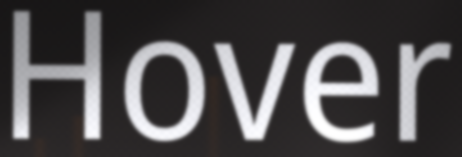
Hover